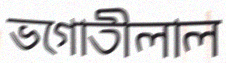
ভগোতীলাল